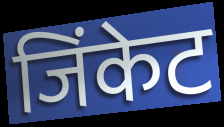
जिंकेट